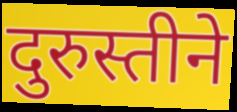
दुरुस्तीने